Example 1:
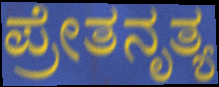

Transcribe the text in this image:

ಪ್ರೇತನೃತ್ಯ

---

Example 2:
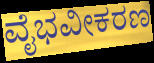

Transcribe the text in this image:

ವೈಭವೀಕರಣ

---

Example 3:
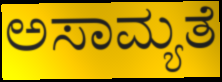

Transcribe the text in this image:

ಅಸಾಮ್ಯತೆ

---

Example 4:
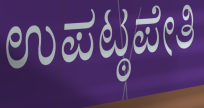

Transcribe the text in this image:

ಉಪಟ್ಠಪೇತಿ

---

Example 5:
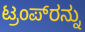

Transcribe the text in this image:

ಟ್ರಂಪ್‌ರನ್ನು